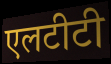
एलटीटी